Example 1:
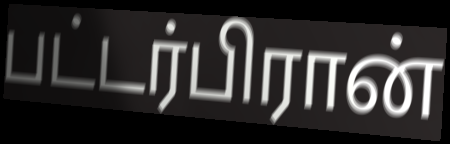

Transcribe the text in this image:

பட்டர்பிரான்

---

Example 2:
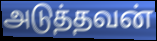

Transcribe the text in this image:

அடுத்தவன்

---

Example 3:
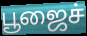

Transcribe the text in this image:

பூஜைச்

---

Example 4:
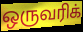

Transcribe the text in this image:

ஒருவரிக்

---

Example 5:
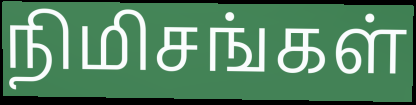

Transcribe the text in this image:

நிமிசங்கள்